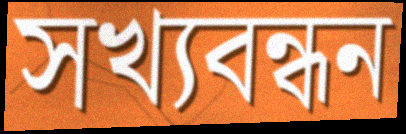
সখ্যবন্ধন